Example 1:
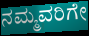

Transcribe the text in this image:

ನಮ್ಮವರಿಗೇ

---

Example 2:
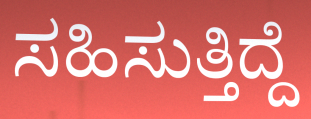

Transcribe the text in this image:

ಸಹಿಸುತ್ತಿದ್ದೆ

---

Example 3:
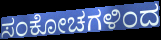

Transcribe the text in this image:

ಸಂಕೋಚಗಳಿಂದ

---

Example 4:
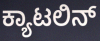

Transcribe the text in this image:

ಕ್ಯಾಟಲಿನ್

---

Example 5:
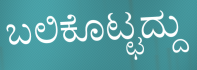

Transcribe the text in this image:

ಬಲಿಕೊಟ್ಟದ್ದು